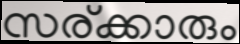
സര്ക്കാരും